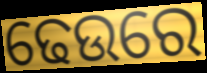
ଢେଉରେ